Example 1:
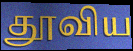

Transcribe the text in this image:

தூவிய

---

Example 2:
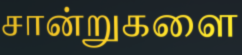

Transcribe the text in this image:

சான்றுகளை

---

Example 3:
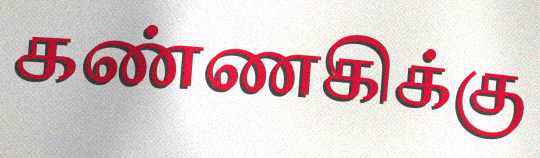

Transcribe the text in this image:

கண்ணகிக்கு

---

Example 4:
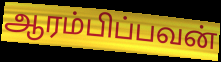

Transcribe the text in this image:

ஆரம்பிப்பவன்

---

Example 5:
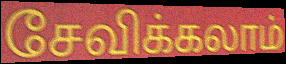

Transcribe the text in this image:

சேவிக்கலாம்